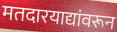
मतदारयाद्यांवरून